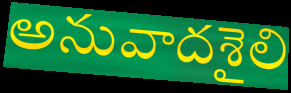
అనువాదశైలి